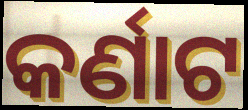
କର୍ଣାଟ